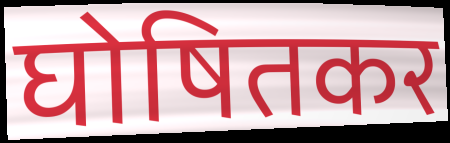
घोषितकर